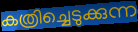
കത്രിച്ചെടുക്കുന്ന